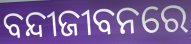
ବନ୍ଦୀଜୀବନରେ